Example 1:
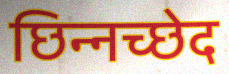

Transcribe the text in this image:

छिन्नच्छेद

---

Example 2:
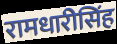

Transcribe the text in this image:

रामधारीसिंह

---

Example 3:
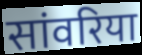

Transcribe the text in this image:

सांवरिया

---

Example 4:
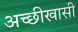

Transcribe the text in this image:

अच्छीखासी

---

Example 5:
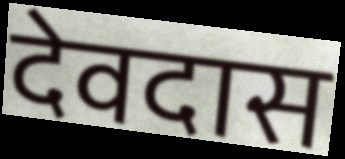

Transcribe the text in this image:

देवदास